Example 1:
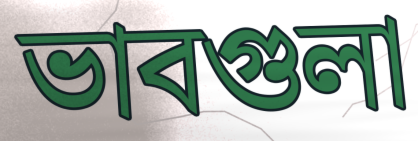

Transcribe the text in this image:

ভাবগুলা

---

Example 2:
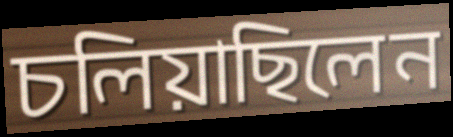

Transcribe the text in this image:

চলিয়াছিলেন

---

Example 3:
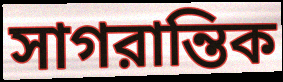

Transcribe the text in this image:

সাগরান্তিক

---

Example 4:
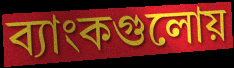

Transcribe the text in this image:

ব্যাংকগুলোয়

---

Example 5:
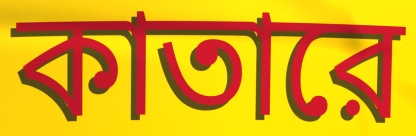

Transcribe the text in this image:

কাতারে